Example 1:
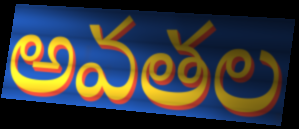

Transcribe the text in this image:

అవతల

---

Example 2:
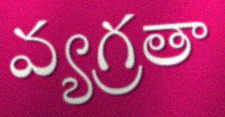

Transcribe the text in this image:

వ్యగ్రతా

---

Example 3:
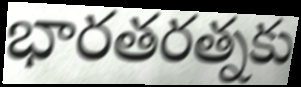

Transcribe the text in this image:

భారతరత్నకు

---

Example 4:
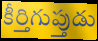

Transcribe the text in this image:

కీర్తిగుప్తుడు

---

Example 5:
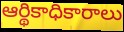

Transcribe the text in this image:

ఆర్థికాధికారాలు